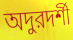
অদুরদর্শী